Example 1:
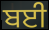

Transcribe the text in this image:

ਬਈ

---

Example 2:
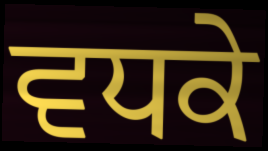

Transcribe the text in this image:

ਵਧਕੇ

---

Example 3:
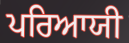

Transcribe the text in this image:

ਪਰਿਆਯੀ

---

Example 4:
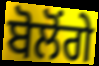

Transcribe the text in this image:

ਬੋਲੋਂਗੇ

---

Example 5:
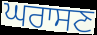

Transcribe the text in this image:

ਘਰਾਸਣ